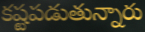
కష్టపడుతున్నారు